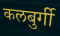
कलबुर्गी